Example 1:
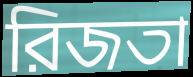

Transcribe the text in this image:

রিজতা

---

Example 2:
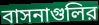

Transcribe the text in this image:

বাসনাগুলির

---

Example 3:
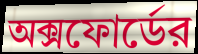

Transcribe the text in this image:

অক্সফোর্ডের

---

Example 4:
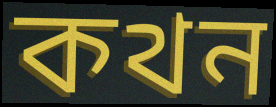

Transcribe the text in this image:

কথন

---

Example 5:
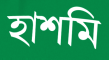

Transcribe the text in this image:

হাশমি